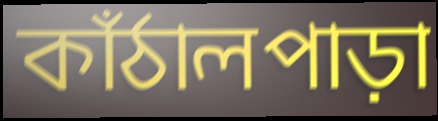
কাঁঠালপাড়া